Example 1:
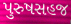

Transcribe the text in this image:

પુરુષસહજ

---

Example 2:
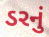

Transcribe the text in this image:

ડરનું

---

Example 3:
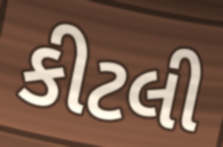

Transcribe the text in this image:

કીટલી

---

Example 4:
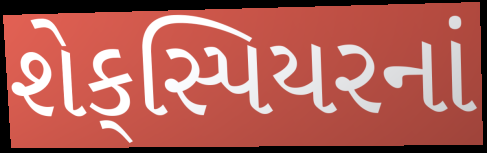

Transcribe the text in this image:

શેક્‌સ્પિયરનાં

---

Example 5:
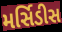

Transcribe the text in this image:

મર્સિડીસ